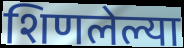
शिणलेल्या